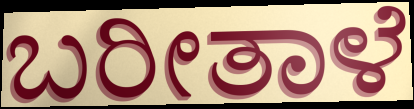
ಬರೀತಾಳೆ